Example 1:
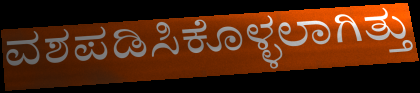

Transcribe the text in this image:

ವಶಪಡಿಸಿಕೊಳ್ಳಲಾಗಿತ್ತು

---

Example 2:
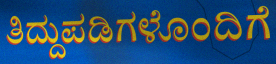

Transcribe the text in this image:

ತಿದ್ದುಪಡಿಗಳೊಂದಿಗೆ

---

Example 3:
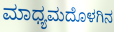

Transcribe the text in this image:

ಮಾಧ್ಯಮದೊಳಗಿನ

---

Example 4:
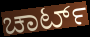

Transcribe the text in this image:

ಚಾರ್ಟ್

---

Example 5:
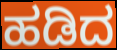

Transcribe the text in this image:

ಹಡಿದ